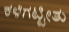
ಕಳೆಗಟ್ಟೀತು